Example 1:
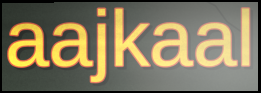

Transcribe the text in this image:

aajkaal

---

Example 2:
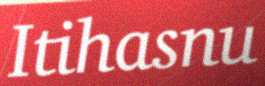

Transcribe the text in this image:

Itihasnu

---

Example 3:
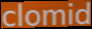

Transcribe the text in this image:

clomid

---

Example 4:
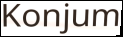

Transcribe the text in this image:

Konjum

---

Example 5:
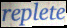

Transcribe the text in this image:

replete